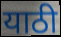
याठी